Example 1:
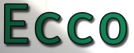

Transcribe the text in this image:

Ecco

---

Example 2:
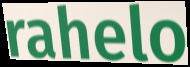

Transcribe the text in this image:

rahelo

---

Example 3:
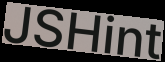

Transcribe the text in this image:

JSHint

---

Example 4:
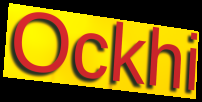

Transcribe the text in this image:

Ockhi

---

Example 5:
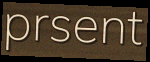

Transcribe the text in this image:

prsent